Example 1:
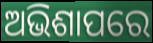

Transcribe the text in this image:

ଅଭିଶାପରେ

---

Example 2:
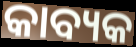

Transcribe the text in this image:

କାବ୍ୟକ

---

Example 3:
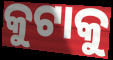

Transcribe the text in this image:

କୁଟାକୁ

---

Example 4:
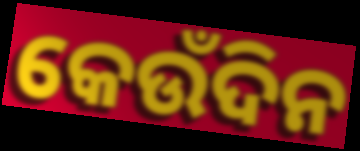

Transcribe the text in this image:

କେଉଁଦିନ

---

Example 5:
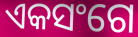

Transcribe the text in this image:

ଏକସଂଗେ